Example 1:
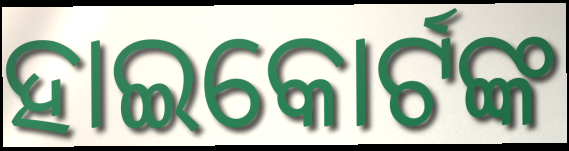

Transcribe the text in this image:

ହାଇକୋର୍ଟଙ୍କ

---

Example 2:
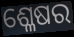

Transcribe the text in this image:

ଶ୍ଳେଷର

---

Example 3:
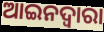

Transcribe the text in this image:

ଆଇନଦ୍ଵାରା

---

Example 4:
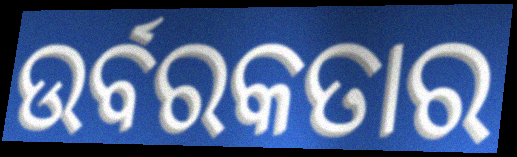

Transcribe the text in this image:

ଉର୍ବରକତାର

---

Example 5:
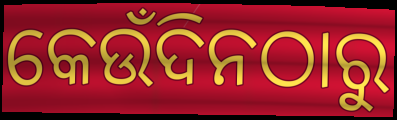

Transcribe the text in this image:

କେଉଁଦିନଠାରୁ